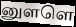
னுளளெ